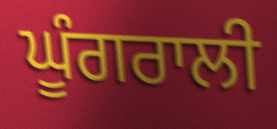
ਘੂੰਗਰਾਲੀ